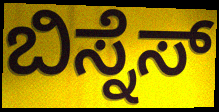
ಬಿಸ್ನೆಸ್